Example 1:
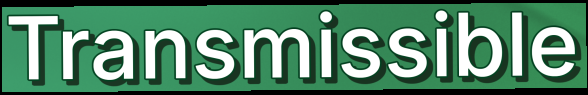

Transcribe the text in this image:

Transmissible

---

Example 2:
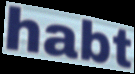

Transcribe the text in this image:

habt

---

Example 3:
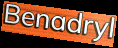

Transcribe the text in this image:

Benadryl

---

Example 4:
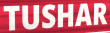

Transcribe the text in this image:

TUSHAR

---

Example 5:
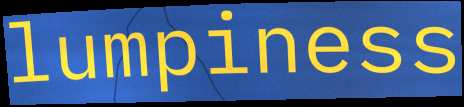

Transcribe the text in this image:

lumpiness